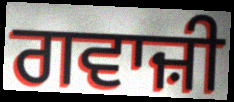
ਗਵਾਜ਼ੀ